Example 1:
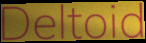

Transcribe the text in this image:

Deltoid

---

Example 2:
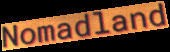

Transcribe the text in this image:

Nomadland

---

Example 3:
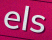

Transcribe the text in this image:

els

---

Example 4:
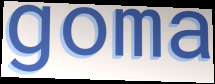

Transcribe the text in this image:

goma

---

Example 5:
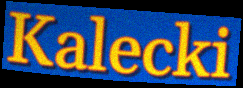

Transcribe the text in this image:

Kalecki